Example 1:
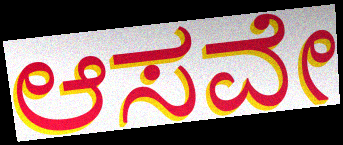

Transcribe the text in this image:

ಆಸವೇ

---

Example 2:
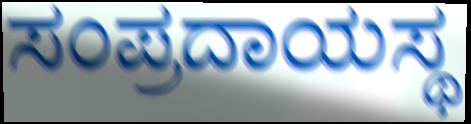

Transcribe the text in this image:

ಸಂಪ್ರದಾಯಸ್ಥ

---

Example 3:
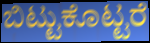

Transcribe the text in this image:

ಬಿಟ್ಟುಕೊಟ್ಟರೆ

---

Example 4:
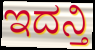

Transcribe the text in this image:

ಇದನ್ತಿ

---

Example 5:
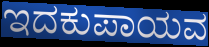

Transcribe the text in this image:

ಇದಕುಪಾಯವ